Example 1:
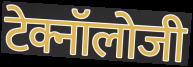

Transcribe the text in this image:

टेक्नॉलोजी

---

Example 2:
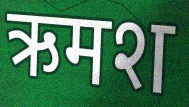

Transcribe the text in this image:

ऋमश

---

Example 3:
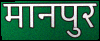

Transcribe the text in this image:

मानपुर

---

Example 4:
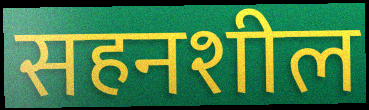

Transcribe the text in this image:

सहनशील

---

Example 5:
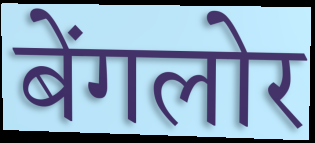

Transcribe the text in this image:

बेंगलोर